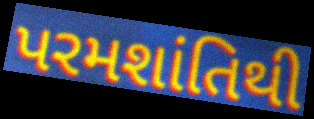
પરમશાંતિથી